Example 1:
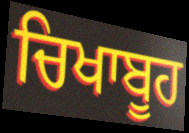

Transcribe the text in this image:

ਚਿਖਾਬੂਹ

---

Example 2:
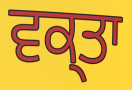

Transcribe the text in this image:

ਵਕ੍ਤਾ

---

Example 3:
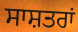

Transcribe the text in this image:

ਸਾਸ਼ਤਰਾਂ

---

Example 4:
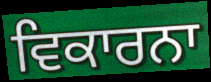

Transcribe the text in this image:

ਵਿਕਾਰਨਾ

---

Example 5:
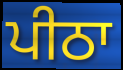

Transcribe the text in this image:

ਪੀਠਾ